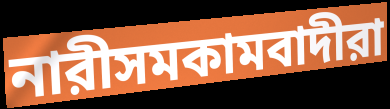
নারীসমকামবাদীরা